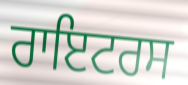
ਰਾਇਟਰਸ